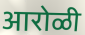
आरोळी